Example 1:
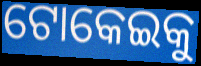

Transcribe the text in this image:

ଟୋକେଇକୁ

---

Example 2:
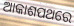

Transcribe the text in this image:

ଆକାଶପଥରେ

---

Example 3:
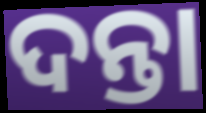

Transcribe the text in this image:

ଦନ୍ତା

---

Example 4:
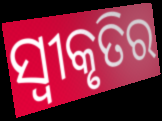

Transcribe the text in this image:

ସ୍ୱୀକୃତିର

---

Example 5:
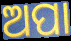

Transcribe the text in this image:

ଅପା